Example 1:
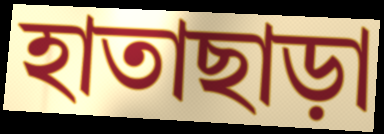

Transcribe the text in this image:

হাতাছাড়া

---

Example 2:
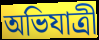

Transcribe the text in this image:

অভিযাত্রী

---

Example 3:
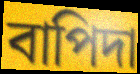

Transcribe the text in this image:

বাপিদা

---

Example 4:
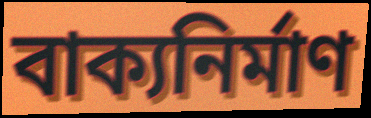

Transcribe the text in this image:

বাক্যনির্মাণ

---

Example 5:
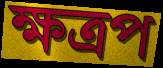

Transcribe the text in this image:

ক্ষত্রপ